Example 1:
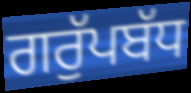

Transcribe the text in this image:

ਗਰੁੱਪਬੱਧ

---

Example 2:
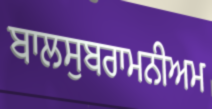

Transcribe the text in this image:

ਬਾਲਸੁਬਰਾਮਨੀਅਮ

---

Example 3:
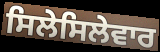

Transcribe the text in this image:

ਸਿਲੇਸਿਲੇਵਾਰ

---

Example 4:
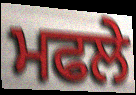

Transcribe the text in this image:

ਮਫਲੇ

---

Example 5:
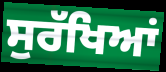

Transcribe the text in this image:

ਸੁਰੱਖਿਆਂ